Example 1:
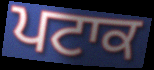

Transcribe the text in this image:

ਪਟਾਕ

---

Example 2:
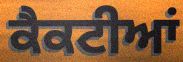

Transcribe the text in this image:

ਕੈਕਟੀਆਂ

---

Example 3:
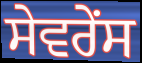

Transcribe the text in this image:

ਸੇਵਰੇਂਸ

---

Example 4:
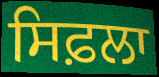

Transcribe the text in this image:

ਸਿਫ਼ਲਾ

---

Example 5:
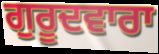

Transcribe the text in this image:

ਗੁਰੂਦਵਾਰਾ